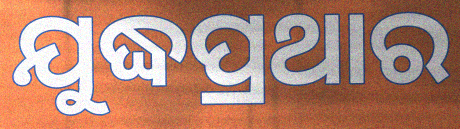
ଯୁଦ୍ଧପ୍ରଥାର